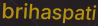
brihaspati